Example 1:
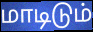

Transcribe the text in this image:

மாடிடும்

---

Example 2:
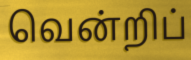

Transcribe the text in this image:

வென்றிப்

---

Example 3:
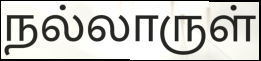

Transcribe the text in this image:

நல்லாருள்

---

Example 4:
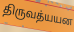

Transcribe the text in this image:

திருவத்யயன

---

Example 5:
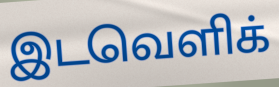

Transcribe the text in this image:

இடவெளிக்